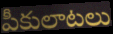
పీకులాటలు